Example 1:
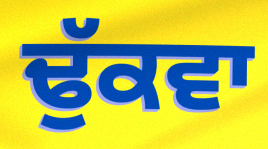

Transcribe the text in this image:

ਢੁੱਕਵਾ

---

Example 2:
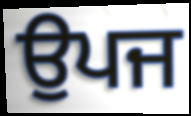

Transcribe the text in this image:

ਉਪਜ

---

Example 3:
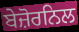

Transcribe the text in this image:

ਬੇਜ਼ੋਰਨਿਲ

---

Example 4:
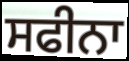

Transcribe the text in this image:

ਸਫੀਨਾ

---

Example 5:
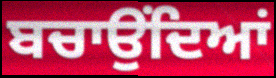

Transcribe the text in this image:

ਬਚਾਉਂਦਿਆਂ